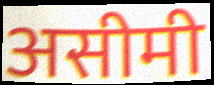
असीमी